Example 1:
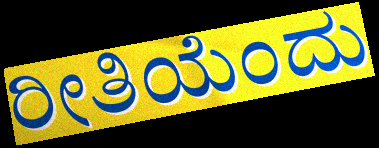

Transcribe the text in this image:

ರೀತಿಯೆಂದು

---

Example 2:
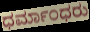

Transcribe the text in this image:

ಧರ್ಮಾಂಧರು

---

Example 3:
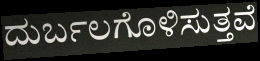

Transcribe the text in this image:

ದುರ್ಬಲಗೊಳಿಸುತ್ತವೆ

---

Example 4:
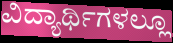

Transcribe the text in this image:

ವಿದ್ಯಾರ್ಥಿಗಳಲ್ಲೂ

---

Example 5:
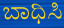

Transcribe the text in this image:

ಬಾಧಿಸಿ